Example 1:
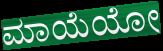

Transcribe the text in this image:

ಮಾಯೆಯೋ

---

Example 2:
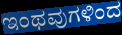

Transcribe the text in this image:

ಇಂಥವುಗಳಿಂದ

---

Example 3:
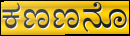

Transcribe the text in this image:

ಕಣಣನೊ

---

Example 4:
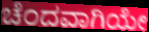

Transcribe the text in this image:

ಚೆಂದವಾಗಿಯೇ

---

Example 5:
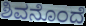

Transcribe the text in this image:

ಶಿವನೊಂದೆ